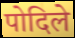
पोदिले